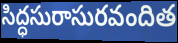
సిద్ధసురాసురవందిత